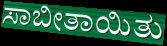
ಸಾಬೀತಾಯಿತು